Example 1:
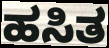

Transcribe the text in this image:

ಹಸಿತ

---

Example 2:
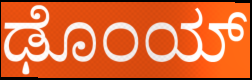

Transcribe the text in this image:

ಢೊಂಯ್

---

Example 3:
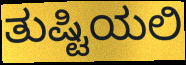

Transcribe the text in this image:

ತುಷ್ಟಿಯಲಿ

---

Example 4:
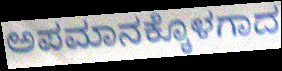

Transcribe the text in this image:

ಅಪಮಾನಕ್ಕೊಳಗಾದ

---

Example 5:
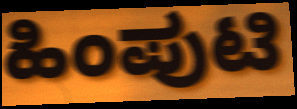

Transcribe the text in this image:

ಹಿಂಪುಟಿ